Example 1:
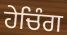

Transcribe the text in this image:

ਹੇਚਿੰਗ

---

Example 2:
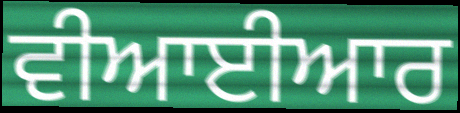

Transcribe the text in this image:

ਵੀਆਈਆਰ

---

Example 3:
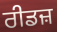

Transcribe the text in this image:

ਰੀਡਜ਼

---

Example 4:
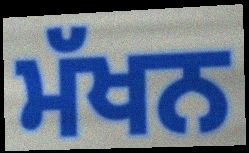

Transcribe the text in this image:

ਮੱਖਨ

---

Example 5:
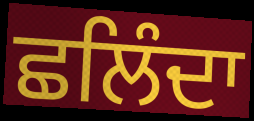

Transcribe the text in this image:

ਛਲਿੰਦਾ